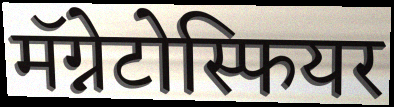
मॅग्नेटोस्फियर